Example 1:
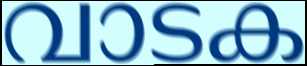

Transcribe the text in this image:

വാടക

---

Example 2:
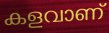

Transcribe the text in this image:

കളവാണ്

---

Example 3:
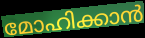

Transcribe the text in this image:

മോഹിക്കാൻ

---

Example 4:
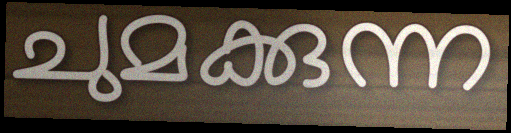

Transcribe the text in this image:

ചുമക്കുന്ന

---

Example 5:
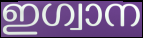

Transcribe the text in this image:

ഇഗ്വാന